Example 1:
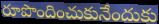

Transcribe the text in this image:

రూపొందించుకునేందుకు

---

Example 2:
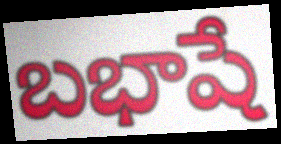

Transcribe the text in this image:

బభాషే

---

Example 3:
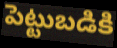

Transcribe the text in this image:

పెట్టుబడికి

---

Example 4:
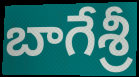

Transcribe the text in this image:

బాగేశ్రీ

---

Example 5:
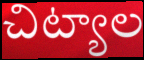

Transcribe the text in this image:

చిట్యాల